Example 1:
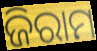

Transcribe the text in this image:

ଜିରାମ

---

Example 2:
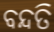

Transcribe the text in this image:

ବନ୍ଦତି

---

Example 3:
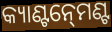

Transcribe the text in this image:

କ୍ୟାଣ୍ଟନ୍‍ମେଣ୍ଟ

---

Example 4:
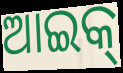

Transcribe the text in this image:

ଆଇକ୍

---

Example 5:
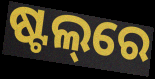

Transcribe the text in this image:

ଷ୍ଟଲ୍‌ରେ